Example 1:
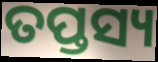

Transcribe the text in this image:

ତପ୍ତସ୍ୟ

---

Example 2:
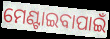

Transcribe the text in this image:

ମେଣ୍ଟାଇବାପାଇଁ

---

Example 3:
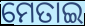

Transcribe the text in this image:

ମେତାଇ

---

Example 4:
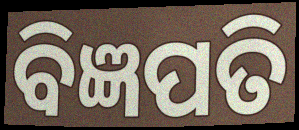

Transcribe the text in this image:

ବିଜ୍ଞପତି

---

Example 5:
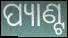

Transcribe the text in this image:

ପ୍ୟାଣ୍ଟ